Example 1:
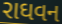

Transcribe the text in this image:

રાઘવન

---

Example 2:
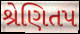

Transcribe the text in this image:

શ્રેણિતપ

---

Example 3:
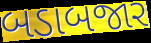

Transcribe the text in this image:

બડાબજાર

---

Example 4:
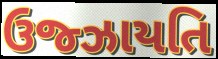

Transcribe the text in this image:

ઉજ્ઝાયતિ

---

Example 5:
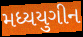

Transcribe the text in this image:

મધ્યયુગીન